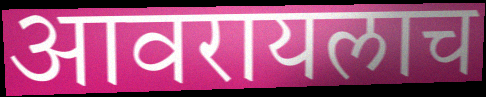
आवरायलाच